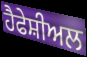
ਹੈਫੇਸ਼ੀਅਲ